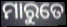
ମାରୁତେ